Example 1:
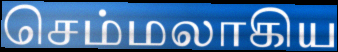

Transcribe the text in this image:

செம்மலாகிய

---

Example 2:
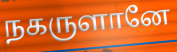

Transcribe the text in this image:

நகருளானே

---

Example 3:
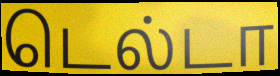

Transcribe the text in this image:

டெல்டா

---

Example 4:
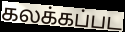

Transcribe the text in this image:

கலக்கப்பட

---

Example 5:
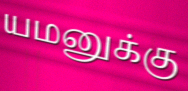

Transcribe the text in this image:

யமனுக்கு